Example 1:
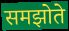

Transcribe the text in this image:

समझोते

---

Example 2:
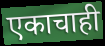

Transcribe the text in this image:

एकाचाही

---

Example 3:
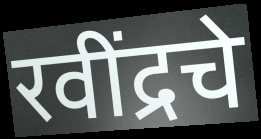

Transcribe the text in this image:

रवींद्रचे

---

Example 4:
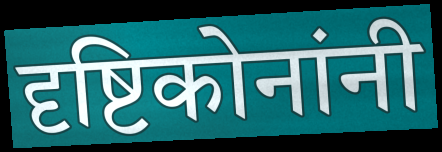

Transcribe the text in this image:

दृष्टिकोनांनी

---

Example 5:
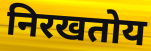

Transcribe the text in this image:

निरखतोय